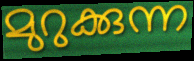
മുറുക്കുന്ന